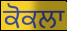
ਕੋਕਲਾ